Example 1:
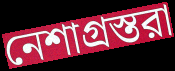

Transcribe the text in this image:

নেশাগ্রস্তরা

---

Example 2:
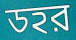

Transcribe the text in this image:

ডহর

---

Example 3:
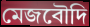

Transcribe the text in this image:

মেজবৌদি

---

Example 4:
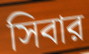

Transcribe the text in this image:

সিবার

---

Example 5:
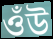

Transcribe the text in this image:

ওঁউ